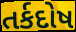
તર્કદોષ